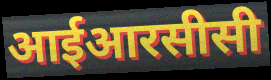
आईआरसीसी